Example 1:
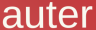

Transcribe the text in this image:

auter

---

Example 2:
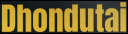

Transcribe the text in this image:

Dhondutai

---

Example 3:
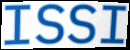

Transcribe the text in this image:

ISSI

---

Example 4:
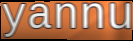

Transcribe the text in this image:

yannu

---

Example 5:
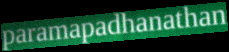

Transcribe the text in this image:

paramapadhanathan